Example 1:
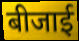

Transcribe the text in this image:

बीजाई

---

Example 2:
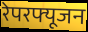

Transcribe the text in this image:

रेपरफ्यूजन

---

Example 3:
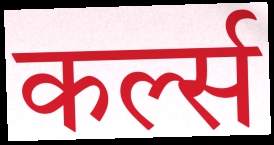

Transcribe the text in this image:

कर्ल्स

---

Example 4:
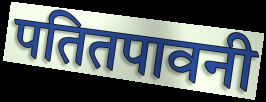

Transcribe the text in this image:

पतितपावनी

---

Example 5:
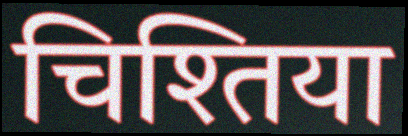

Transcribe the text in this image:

चिश्तिया